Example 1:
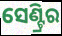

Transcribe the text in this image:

ସେଣ୍ଟ୍ରିର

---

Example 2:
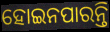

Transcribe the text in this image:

ହୋଇନପାରନ୍ତି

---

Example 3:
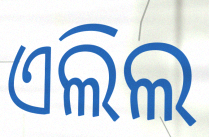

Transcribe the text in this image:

ଏଲିଲ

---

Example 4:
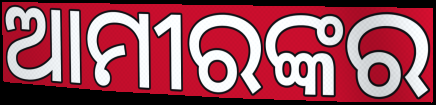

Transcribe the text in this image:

ଆମୀରଙ୍କର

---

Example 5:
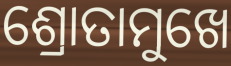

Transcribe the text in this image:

ଶ୍ରୋତାମୁଖେ